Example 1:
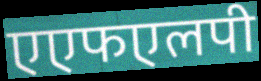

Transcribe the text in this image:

एएफएलपी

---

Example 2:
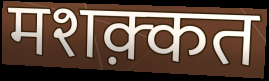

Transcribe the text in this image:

मशक़्कत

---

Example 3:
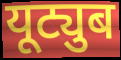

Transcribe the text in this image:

यूट्युब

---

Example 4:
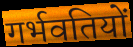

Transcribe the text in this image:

गर्भवतियों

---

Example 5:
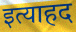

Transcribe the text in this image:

इत्याहद